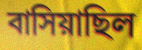
বাসিয়াছিল